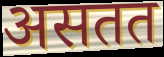
असतत